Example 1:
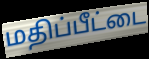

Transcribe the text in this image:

மதிப்பீட்டை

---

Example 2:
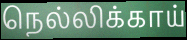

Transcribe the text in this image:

நெல்லிக்காய்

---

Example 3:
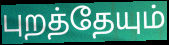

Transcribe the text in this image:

புறத்தேயும்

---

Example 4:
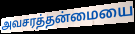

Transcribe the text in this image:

அவசரத்தன்மையை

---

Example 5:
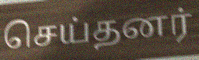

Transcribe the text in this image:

செய்தனர்